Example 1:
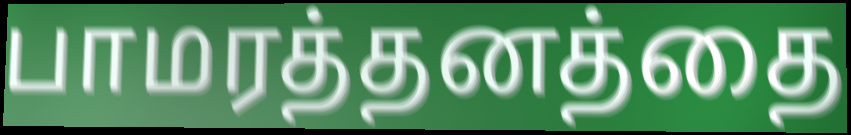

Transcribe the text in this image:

பாமரத்தனத்தை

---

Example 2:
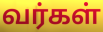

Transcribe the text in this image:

வர்கள்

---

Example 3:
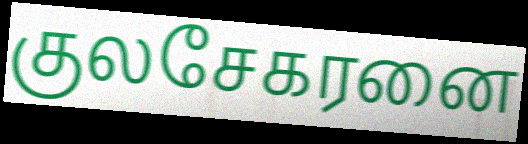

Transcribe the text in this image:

குலசேகரனை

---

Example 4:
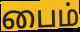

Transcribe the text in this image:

பைம்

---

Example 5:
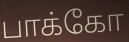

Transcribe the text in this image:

பாக்கோ